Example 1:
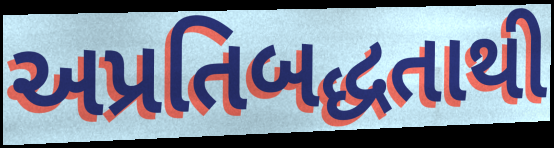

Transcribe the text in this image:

અપ્રતિબદ્ધતાથી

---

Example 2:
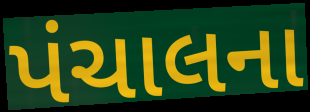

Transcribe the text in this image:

પંચાલના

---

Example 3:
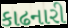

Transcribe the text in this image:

કાઢનારી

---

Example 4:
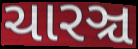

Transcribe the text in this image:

ચારઞ્ચ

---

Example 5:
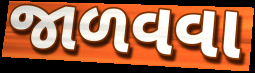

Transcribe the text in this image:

જાળવવા